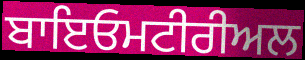
ਬਾਇਓਮਟੀਰੀਅਲ